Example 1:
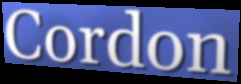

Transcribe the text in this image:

Cordon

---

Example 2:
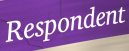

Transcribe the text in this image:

Respondent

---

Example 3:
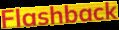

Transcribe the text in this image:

Flashback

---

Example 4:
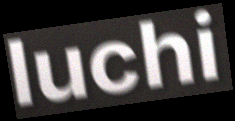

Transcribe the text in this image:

luchi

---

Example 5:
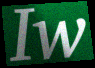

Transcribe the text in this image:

Iw